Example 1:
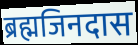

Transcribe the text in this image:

ब्रह्मजिनदास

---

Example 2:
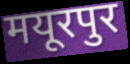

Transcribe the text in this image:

मयूरपुर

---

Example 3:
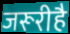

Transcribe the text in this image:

जरूरीहै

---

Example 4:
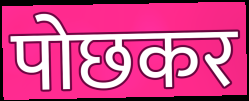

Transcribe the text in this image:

पोछकर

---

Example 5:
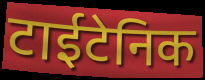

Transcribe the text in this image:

टाईटेनिक